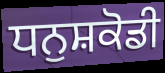
ਧਨੁਸ਼ਕੋਡੀ